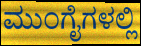
ಮುಂಗೈಗಳಲ್ಲಿ